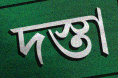
দস্তা